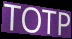
TOTP